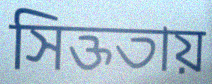
সিক্ততায়